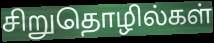
சிறுதொழில்கள்